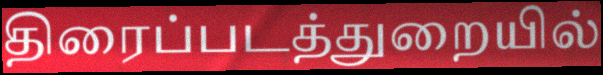
திரைப்படத்துறையில்